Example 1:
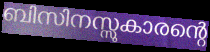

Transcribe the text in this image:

ബിസിനസ്സുകാരന്റെ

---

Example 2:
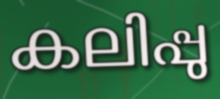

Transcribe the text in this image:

കലിപ്പു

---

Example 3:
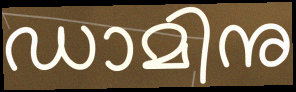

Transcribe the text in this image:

ഡാമിനു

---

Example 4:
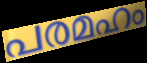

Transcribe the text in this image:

പരമഹം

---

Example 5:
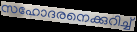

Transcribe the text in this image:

സഹോദരനെക്കുറിച്ച്